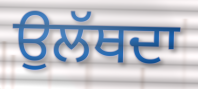
ਉਲੱਥਦਾ